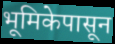
भूमिकेपासून